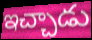
ఇచ్చాడు